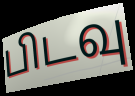
பிடவு